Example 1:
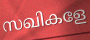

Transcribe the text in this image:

സഖികളേ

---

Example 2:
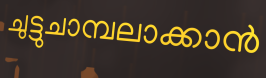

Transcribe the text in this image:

ചുട്ടുചാമ്പലാക്കാൻ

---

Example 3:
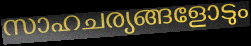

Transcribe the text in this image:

സാഹചര്യങ്ങളോടും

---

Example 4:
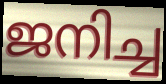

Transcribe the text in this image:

ജനിച്ച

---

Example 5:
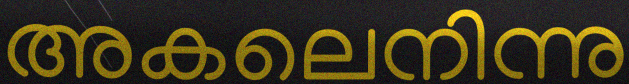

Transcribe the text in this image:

അകലെനിന്നു